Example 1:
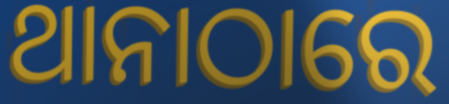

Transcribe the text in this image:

ଥାନାଠାରେ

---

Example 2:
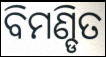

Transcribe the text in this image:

ବିମଣ୍ଡିତ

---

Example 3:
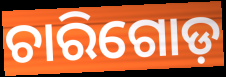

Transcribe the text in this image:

ଚାରିଗୋଡ଼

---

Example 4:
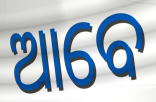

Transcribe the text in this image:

ଆବେ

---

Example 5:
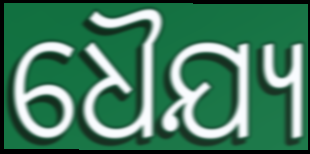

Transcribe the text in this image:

ଧୈଯ୍ୟ